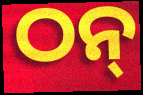
ଠନ୍